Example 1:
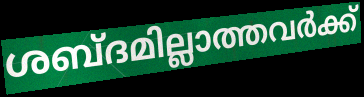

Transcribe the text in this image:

ശബ്ദമില്ലാത്തവർക്ക്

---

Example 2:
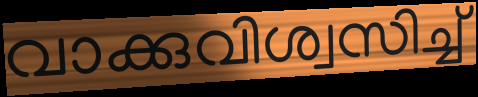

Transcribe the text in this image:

വാക്കുവിശ്വസിച്ച്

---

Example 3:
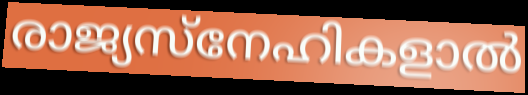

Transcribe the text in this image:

രാജ്യസ്നേഹികളാൽ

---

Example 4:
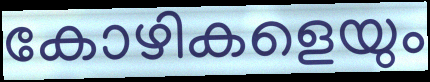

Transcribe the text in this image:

കോഴികളെയും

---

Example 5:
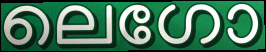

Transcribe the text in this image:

ലെഗോ